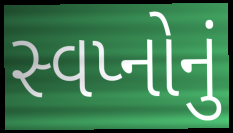
સ્વપ્નોનું